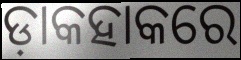
ଡ଼ାକହାକରେ